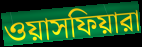
ওয়াসফিয়ারা